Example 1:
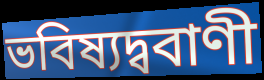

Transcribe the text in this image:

ভবিষ্যদ্ববাণী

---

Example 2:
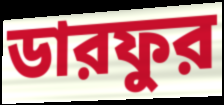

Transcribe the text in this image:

ডারফুর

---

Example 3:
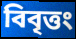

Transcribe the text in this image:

বিবৃত্তং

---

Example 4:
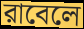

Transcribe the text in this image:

রাবেলে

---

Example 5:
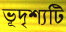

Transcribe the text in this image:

ভূদৃশ্যটি